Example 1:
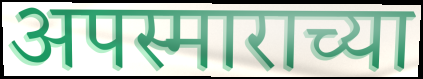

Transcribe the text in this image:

अपस्माराच्या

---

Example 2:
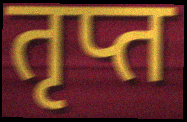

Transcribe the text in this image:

तृप्त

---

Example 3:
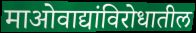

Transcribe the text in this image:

माओवाद्यांविरोधातील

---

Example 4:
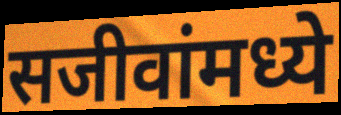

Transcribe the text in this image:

सजीवांमध्ये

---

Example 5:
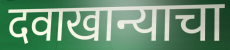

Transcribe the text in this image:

दवाखान्याचा